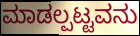
ಮಾಡಲ್ಪಟ್ಟವನು